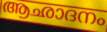
ആഛാദനം